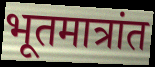
भूतमात्रांत